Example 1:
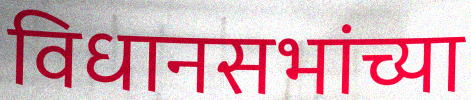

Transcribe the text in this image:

विधानसभांच्या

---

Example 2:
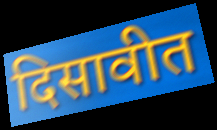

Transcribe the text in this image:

दिसावीत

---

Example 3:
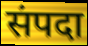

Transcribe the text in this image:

संपदा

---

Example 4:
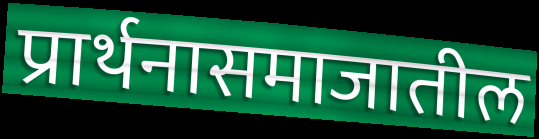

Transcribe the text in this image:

प्रार्थनासमाजातील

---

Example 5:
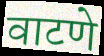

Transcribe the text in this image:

वाटणे